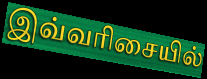
இவ்வரிசையில்